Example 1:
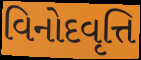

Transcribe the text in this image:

વિનોદવૃત્તિ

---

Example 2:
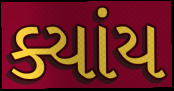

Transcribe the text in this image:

ક્યાંય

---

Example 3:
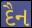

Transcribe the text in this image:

દૈન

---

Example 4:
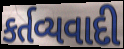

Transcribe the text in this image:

કર્તવ્યવાદી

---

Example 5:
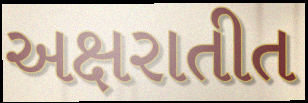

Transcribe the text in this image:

અક્ષરાતીત